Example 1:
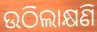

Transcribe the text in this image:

ଉଠିଲାକ୍ଷଣି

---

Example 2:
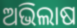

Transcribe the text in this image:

ଅଭିଲାଷ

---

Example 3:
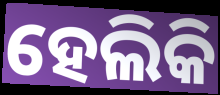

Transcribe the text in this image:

ହେଲିକି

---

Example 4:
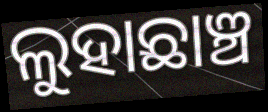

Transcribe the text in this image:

ଲୁହାଛାଞ୍ଚ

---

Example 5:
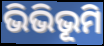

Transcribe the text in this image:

ଭିଭିଭୂମି